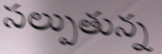
సల్పుతున్న